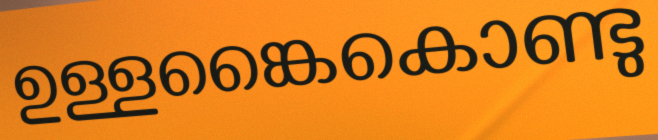
ഉള്ളങ്കൈകൊണ്ടു